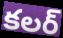
కలర్